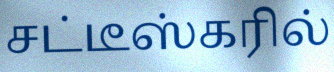
சட்டீஸ்கரில்